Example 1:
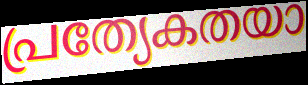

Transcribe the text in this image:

പ്രത്യേകതയാ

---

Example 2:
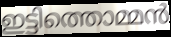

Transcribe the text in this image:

ഇട്ടിത്തൊമ്മൻ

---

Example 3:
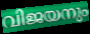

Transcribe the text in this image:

വിജയനും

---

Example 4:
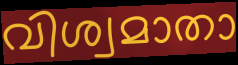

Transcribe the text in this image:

വിശ്വമാതാ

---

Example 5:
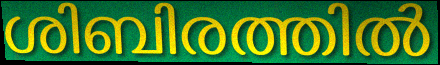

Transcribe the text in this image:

ശിബിരത്തിൽ